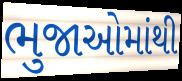
ભુજાઓમાંથી